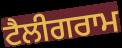
ਟੈਲੀਗਰਾਮ